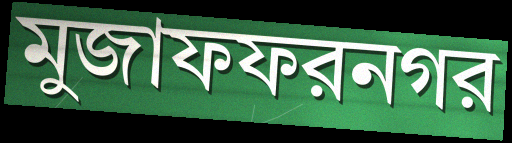
মুজাফফরনগর